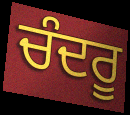
ਚੰਦਰੂ